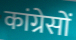
कांग्रेसों